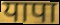
यापा